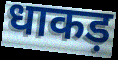
धाकड़